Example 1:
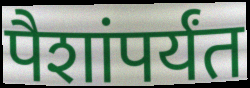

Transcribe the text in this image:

पैशांपर्यंत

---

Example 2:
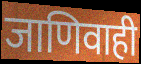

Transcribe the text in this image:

जाणिवाही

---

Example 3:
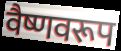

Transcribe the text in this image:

वैष्णवरूप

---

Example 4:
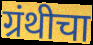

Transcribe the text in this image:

ग्रंथीचा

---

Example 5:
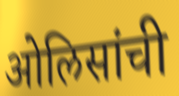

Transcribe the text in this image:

ओलिसांची